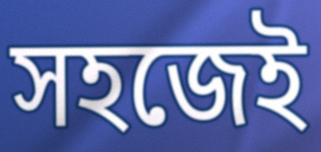
সহজেই